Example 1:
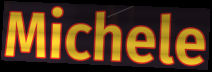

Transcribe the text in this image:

Michele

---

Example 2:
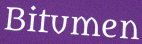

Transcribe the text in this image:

Bitumen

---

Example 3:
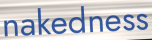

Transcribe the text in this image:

nakedness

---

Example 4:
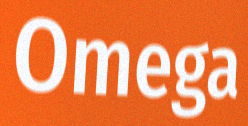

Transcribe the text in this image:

Omega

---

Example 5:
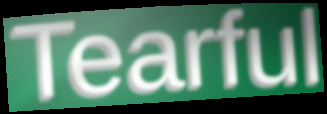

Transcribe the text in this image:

Tearful